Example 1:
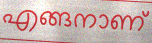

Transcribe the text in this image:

എങ്ങനാണ്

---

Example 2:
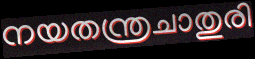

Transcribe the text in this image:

നയതന്ത്രചാതുരി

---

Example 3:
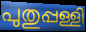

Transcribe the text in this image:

പുതുപ്പള്ളി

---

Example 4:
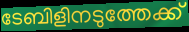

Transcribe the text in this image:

ടേബിളിനടുത്തേക്ക്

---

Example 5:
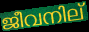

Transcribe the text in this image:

ജീവനില്